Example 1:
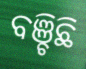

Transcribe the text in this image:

ବଞ୍ଚିଛି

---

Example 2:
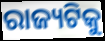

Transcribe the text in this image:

ରାଜ୍ୟଟିକୁ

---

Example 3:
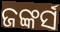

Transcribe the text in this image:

ଜଙ୍କର୍ସ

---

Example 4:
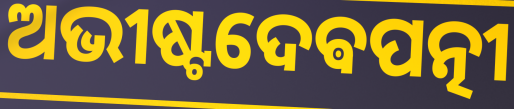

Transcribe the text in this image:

ଅଭୀଷ୍ଟଦେଵପତ୍ନୀ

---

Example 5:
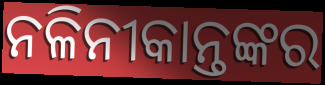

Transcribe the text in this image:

ନଳିନୀକାନ୍ତଙ୍କର